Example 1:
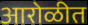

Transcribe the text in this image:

आरोळीत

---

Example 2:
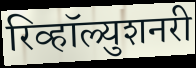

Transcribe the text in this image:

रिव्हॉल्युशनरी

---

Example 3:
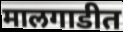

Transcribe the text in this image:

मालगाडीत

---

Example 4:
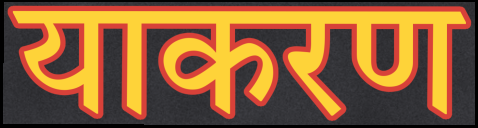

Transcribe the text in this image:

याकरण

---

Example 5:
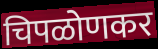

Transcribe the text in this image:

चिपळोणकर